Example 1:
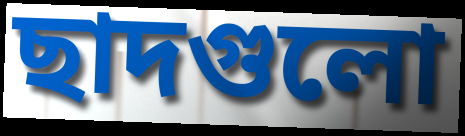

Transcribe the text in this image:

ছাদগুলো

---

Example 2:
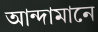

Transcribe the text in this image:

আন্দামানে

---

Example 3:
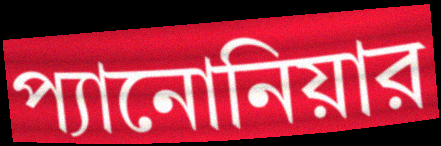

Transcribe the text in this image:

প্যানোনিয়ার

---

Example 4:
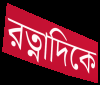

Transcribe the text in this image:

রত্নাদিকে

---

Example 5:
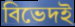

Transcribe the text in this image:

বিভেদই